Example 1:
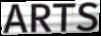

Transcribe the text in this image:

ARTS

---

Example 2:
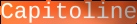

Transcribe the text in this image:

Capitoline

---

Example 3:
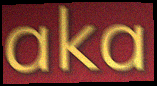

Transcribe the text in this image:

aka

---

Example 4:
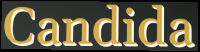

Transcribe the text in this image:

Candida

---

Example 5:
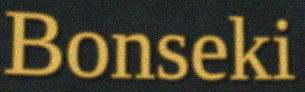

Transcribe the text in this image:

Bonseki